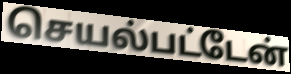
செயல்பட்டேன்